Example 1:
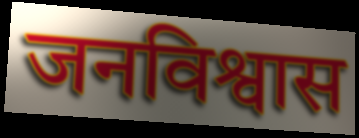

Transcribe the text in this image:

जनविश्वास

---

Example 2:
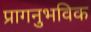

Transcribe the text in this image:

प्रागनुभविक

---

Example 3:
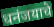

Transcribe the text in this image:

धनंजयाचे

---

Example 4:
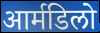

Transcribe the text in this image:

आर्मडिलो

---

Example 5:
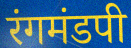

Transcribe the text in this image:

रंगमंडपी